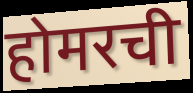
होमरची